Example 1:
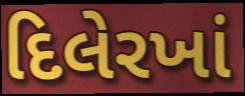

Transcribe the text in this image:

દિલેરખાં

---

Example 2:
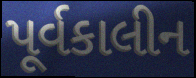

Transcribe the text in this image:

પૂર્વકાલીન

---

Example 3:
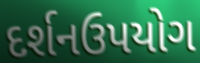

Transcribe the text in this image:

દર્શનઉપયોગ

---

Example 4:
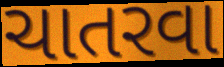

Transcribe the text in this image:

ચાતરવા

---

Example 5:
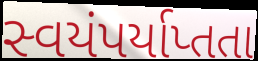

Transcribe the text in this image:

સ્વયંપર્યાપ્તતા